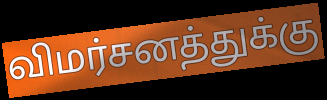
விமர்சனத்துக்கு